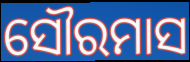
ସୌରମାସ